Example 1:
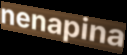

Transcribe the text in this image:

nenapina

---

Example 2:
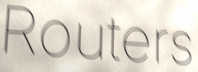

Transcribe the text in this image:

Routers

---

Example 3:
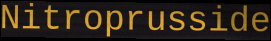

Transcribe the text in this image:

Nitroprusside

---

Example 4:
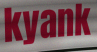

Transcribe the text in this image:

kyank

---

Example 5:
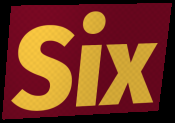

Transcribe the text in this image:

Six